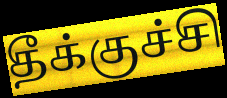
தீக்குச்சி